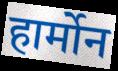
हार्मोन